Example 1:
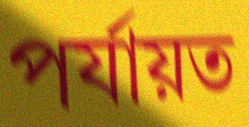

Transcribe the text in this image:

পৰ্যায়ত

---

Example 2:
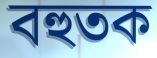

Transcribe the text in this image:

বহুতক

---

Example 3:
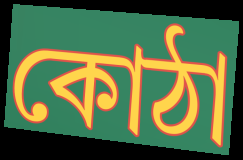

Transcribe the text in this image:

কোঠা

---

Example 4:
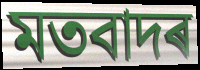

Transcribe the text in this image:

মতবাদৰ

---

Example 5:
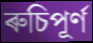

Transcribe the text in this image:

ৰুচিপূৰ্ণ